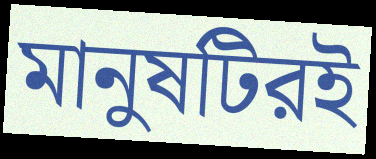
মানুষটিরই